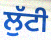
ਲੁੱਟੀ